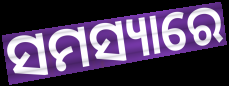
ସମସ୍ୟାରେ